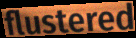
flustered